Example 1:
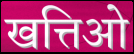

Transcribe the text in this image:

खत्तिओ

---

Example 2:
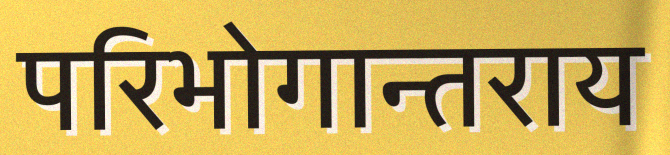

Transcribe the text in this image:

परिभोगान्तराय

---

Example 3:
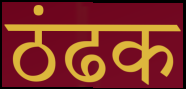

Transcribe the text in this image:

ठंढक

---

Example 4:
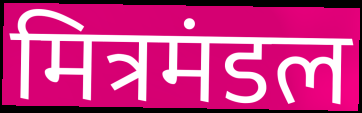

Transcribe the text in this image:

मित्रमंडल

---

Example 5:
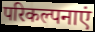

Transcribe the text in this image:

परिकल्पनाएं